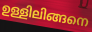
ഉള്ളിലിങ്ങനെ